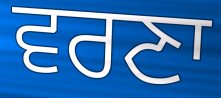
ਵਰਣਾ